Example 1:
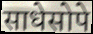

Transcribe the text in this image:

साधेसोपे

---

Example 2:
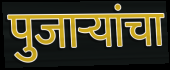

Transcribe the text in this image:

पुजाऱ्यांचा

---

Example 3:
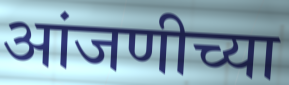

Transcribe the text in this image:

आंजणीच्या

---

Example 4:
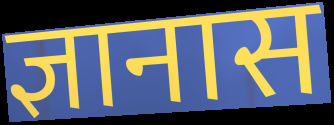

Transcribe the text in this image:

ज्ञानास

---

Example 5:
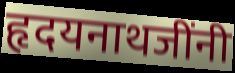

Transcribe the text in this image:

हृदयनाथजींनी